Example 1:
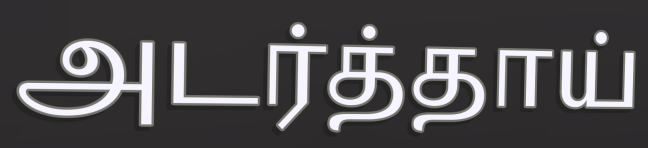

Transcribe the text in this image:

அடர்த்தாய்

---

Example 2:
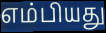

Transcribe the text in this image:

எம்பியது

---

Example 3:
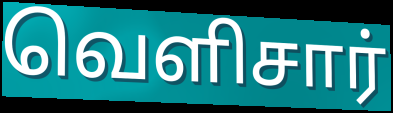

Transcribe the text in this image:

வெளிசார்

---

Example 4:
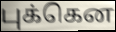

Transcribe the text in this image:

புக்கென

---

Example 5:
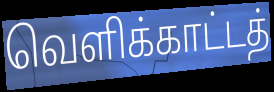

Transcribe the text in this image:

வெளிக்காட்டத்